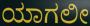
ಯಾಗಲೀ